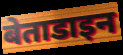
बेताडाइन